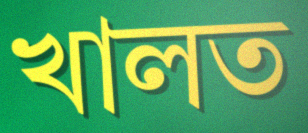
খালত